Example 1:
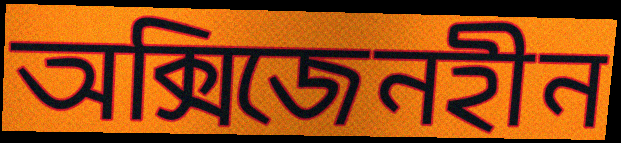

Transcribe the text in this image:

অক্সিজেনহীন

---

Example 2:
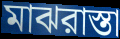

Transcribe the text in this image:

মাঝরাস্তা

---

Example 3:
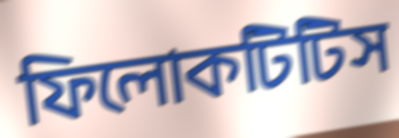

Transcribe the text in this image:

ফিলোকটিটিস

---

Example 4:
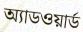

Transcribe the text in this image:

অ্যাডওয়ার্ড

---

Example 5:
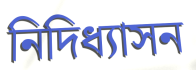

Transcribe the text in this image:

নিদিধ্যাসন